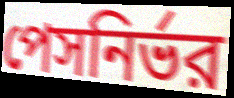
পেসনির্ভর